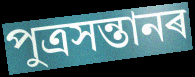
পুত্ৰসন্তানৰ